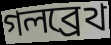
গলব্রেথ